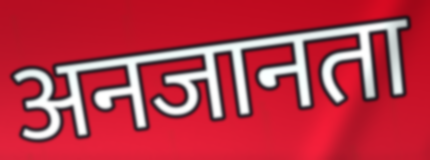
अनजानता